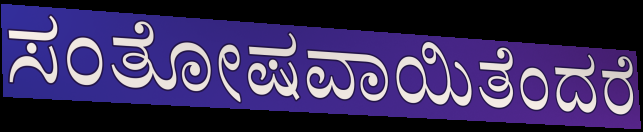
ಸಂತೋಷವಾಯಿತೆಂದರೆ